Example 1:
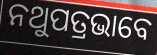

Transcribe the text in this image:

ନଥୁପତ୍ରଭାବେ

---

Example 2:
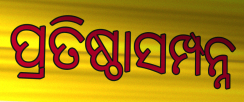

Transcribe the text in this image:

ପ୍ରତିଷ୍ଠାସମ୍ପନ୍ନ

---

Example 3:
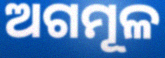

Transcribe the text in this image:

ଅଗମୂଳ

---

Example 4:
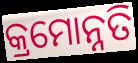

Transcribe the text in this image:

କ୍ରମୋନ୍ନତି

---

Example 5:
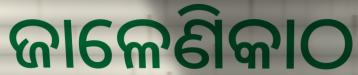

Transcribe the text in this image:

ଜାଳେଣିକାଠ